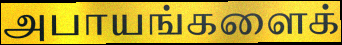
அபாயங்களைக்